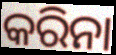
କରିନା